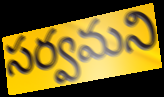
సర్వమని